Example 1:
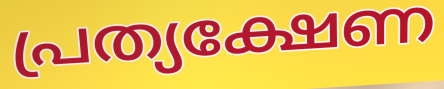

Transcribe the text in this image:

പ്രത്യക്ഷേണ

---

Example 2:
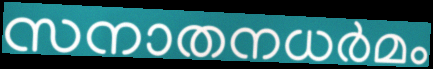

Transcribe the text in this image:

സനാതനധർമം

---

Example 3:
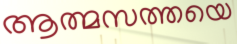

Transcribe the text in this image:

ആത്മസത്തയെ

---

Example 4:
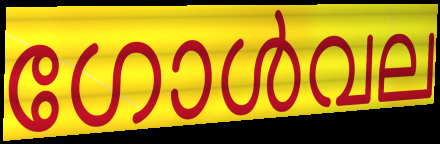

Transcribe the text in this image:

ഗോൾവല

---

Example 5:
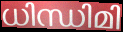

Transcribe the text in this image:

ധിന്ധിമി